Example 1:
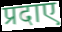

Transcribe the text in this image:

प्रदाए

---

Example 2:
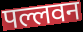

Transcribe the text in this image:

पल्लवन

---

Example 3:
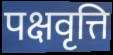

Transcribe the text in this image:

पक्षवृत्ति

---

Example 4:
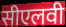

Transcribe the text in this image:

सीएलवी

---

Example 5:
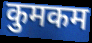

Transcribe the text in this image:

कुमकम